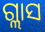
ଗ୍ଲାସ